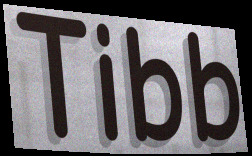
Tibb